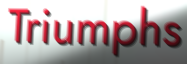
Triumphs